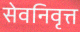
सेवनिवृत्त